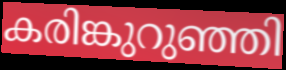
കരിങ്കുറുഞ്ഞി